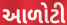
આળોટી